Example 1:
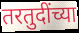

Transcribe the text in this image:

तरतुदींच्या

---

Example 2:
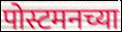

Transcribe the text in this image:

पोस्टमनच्या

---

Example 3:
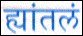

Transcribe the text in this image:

ह्यांतलं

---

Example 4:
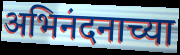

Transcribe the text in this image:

अभिनंदनाच्या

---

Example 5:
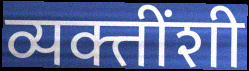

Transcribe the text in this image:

व्यक्तींशी